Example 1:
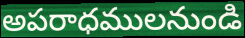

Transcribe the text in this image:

అపరాధములనుండి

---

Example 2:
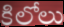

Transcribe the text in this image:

కిలోలు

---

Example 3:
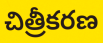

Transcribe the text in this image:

చిత్రీకరణ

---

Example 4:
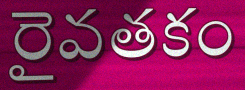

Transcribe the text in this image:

రైవతకం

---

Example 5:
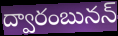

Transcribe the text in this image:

ద్వారంబునన్